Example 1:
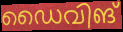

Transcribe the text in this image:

ഡൈവിങ്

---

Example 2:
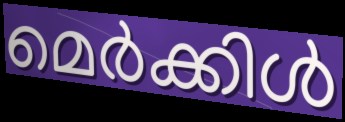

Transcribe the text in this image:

മെർക്കിൾ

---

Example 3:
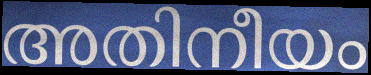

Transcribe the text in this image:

അതിനീയം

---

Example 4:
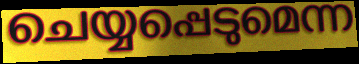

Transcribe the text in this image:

ചെയ്യപ്പെടുമെന്ന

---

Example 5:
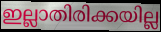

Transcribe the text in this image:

ഇല്ലാതിരിക്കയില്ല